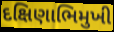
દક્ષિણાભિમુખી